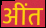
अींत